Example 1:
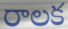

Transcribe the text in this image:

రాలక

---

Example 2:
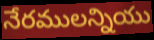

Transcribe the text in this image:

నేరములన్నియు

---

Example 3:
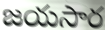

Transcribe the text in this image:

జయసార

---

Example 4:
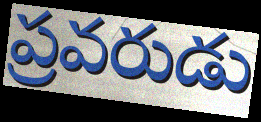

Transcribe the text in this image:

ప్రవరుడు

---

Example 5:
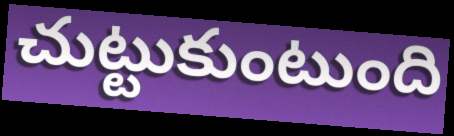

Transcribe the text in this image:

చుట్టుకుంటుంది